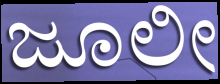
ಜೂಲೀ